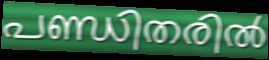
പണ്ഡിതരിൽ